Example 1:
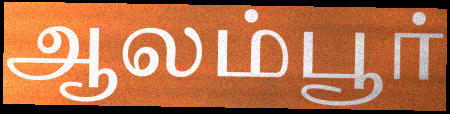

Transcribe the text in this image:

ஆலம்பூர்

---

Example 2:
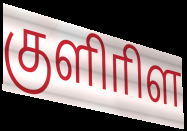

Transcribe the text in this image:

குளிரிள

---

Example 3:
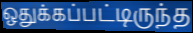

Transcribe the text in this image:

ஒதுக்கப்பட்டிருந்த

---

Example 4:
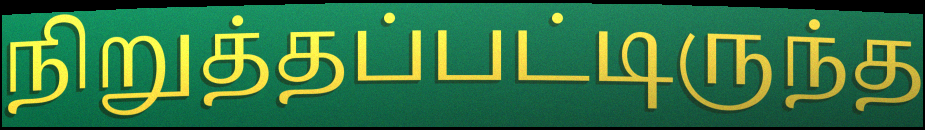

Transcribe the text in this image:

நிறுத்தப்பட்டிருந்த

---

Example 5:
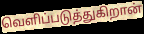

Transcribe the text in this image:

வெளிப்படுத்துகிறான்